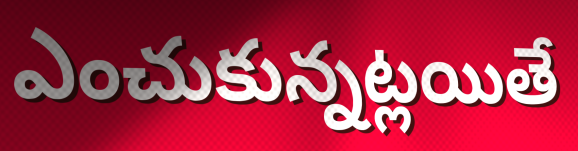
ఎంచుకున్నట్లయితే